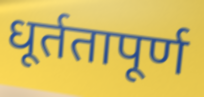
धूर्ततापूर्ण